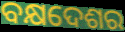
ବକ୍ଷଦେଶର